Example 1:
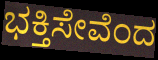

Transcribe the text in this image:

ಭಕ್ತಿಸೇವೆಂದ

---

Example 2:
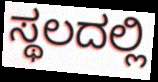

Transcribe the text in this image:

ಸ್ಥಲದಲ್ಲಿ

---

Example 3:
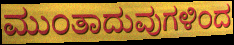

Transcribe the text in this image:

ಮುಂತಾದುವುಗಳಿಂದ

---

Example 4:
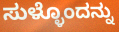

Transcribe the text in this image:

ಸುಳ್ಳೊಂದನ್ನು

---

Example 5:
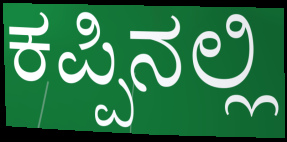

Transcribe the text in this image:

ಕಪ್ಪಿನಲ್ಲಿ